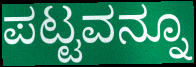
ಪಟ್ಟವನ್ನೂ